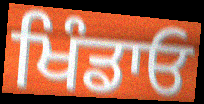
ਖਿੰਡਾਓ